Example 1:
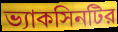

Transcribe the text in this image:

ভ্যাকসিনটির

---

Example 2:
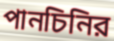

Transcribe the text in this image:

পানচিনির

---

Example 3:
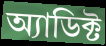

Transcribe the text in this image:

অ্যাডিক্ট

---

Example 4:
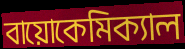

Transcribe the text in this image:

বায়োকেমিক্যাল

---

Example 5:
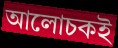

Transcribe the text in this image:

আলোচকই